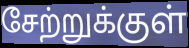
சேற்றுக்குள்